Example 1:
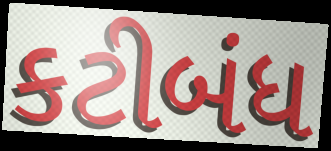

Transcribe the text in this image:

કટીબંધ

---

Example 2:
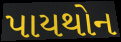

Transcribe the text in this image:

પાયથોન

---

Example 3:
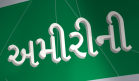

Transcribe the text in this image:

અમીરીની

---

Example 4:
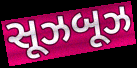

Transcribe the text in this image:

સૂઝબૂઝ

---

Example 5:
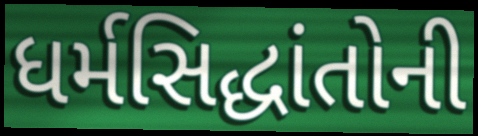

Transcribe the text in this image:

ધર્મસિદ્ધાંતોની